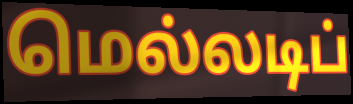
மெல்லடிப்